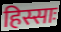
हिस्साः